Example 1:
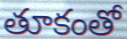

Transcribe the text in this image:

తూకంతో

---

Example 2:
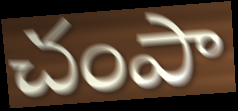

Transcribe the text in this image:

చంపా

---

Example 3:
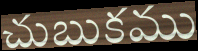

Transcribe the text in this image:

చుబుకము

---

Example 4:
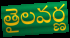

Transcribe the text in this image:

తైలవర్ణ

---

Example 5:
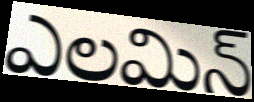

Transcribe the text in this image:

ఎలమిన్